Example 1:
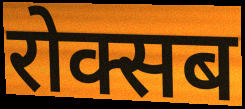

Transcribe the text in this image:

रोक्सब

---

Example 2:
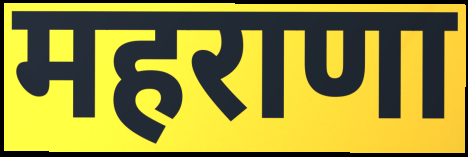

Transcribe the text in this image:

महराणा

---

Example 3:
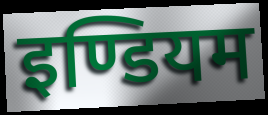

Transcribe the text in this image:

इण्डियम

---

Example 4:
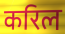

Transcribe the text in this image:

करिल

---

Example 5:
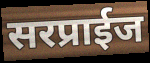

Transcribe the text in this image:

सरप्राईज